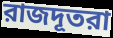
রাজদূতরা